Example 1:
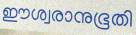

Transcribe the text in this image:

ഈശ്വരാനുഭൂതി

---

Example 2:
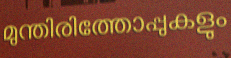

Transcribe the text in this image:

മുന്തിരിത്തോപ്പുകളും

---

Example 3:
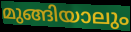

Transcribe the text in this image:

മുങ്ങിയാലും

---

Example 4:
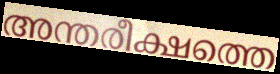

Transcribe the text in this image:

അന്തരീക്ഷത്തെ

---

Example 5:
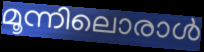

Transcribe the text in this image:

മൂന്നിലൊരാൾ